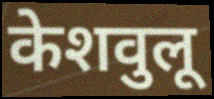
केशवुलू